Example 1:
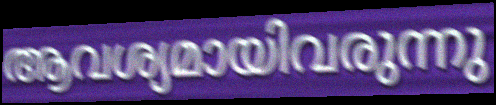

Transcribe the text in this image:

ആവശ്യമായിവരുന്നു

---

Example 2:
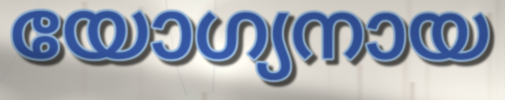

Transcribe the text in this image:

യോഗ്യനായ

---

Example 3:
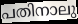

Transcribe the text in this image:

പതിനാലു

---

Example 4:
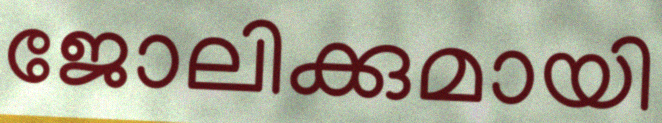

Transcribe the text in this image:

ജോലിക്കുമായി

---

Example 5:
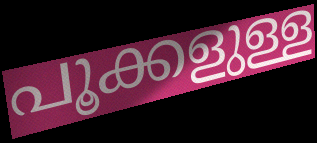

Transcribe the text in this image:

പൂക്കളുള്ള